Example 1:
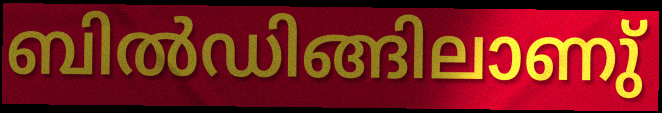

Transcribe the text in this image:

ബിൽഡിങ്ങിലാണു്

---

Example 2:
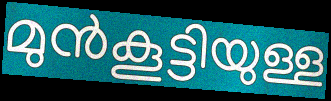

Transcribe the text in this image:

മുൻകൂട്ടിയുള്ള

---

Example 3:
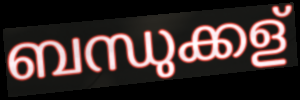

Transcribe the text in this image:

ബന്ധുക്കള്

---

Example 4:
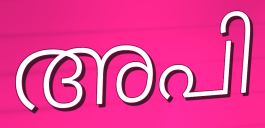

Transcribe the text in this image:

അപി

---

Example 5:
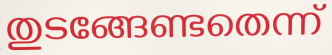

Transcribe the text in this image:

തുടങ്ങേണ്ടതെന്ന്